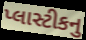
પ્લાસ્ટીકનુ